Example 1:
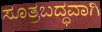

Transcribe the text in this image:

ಸೂತ್ರಬದ್ಧವಾಗಿ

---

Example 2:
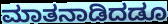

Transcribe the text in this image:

ಮಾತನಾಡಿದಡೂ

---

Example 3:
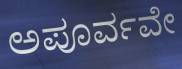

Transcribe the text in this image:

ಅಪೂರ್ವವೇ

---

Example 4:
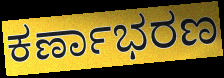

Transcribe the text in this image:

ಕರ್ಣಾಭರಣ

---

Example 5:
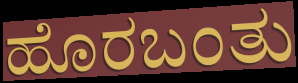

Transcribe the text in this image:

ಹೊರಬಂತು